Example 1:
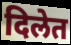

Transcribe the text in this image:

दिलेत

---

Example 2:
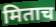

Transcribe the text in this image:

मिताच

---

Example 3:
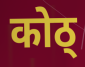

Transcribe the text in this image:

कोठ्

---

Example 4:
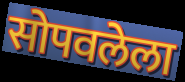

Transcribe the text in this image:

सोपवलेला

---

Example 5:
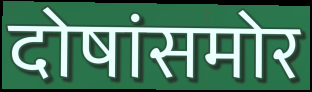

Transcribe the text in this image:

दोषांसमोर